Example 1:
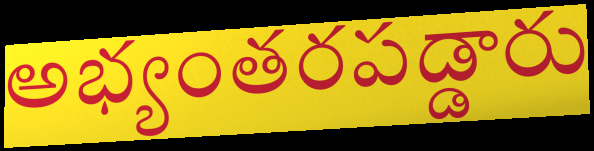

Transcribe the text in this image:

అభ్యంతరపడ్డారు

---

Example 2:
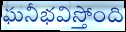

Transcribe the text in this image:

ఘనీభవిస్తోంది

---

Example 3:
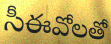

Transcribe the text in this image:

సీఈవోలతో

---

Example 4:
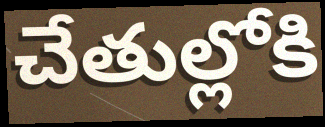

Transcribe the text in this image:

చేతుల్లోకి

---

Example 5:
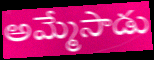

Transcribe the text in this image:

అమ్మేసాడు